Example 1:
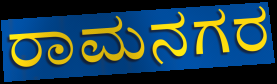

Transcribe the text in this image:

ರಾಮನಗರ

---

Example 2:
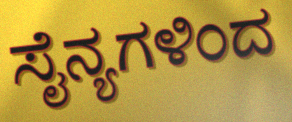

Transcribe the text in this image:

ಸೈನ್ಯಗಳಿಂದ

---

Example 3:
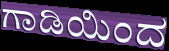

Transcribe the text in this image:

ಗಾಡಿಯಿಂದ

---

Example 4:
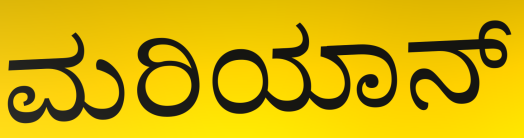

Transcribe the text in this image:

ಮರಿಯಾನ್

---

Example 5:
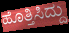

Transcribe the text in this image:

ಹೊತ್ತಿಸಿದ್ದು